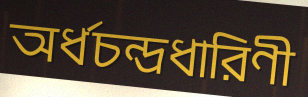
অর্ধচন্দ্রধারিণী